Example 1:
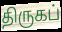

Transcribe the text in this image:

திருகப்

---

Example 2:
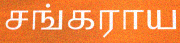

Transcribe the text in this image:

சங்கராய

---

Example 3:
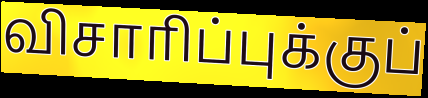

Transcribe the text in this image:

விசாரிப்புக்குப்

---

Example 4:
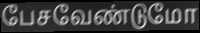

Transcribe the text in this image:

பேசவேண்டுமோ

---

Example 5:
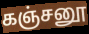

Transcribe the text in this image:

கஞ்சனூ